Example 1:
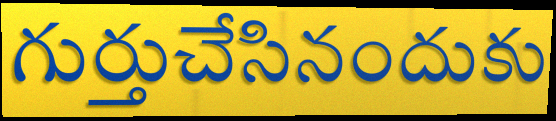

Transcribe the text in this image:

గుర్తుచేసినందుకు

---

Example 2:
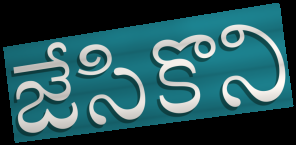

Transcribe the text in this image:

జేసికొని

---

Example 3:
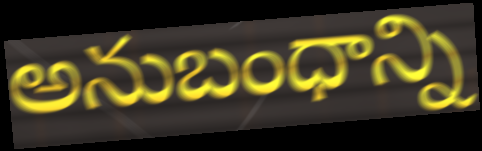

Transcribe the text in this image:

అనుబంధాన్ని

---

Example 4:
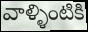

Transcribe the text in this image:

వాళ్ళింటికి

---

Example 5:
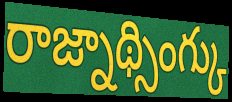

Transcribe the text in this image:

రాజ్నాథ్సింగ్కు